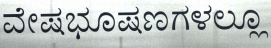
ವೇಷಭೂಷಣಗಳಲ್ಲೂ